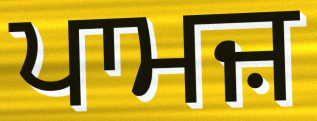
ਪਾਮਜ਼